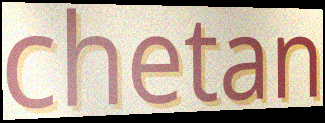
chetan